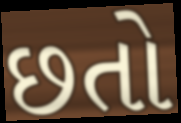
છતો